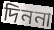
দিননা